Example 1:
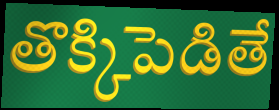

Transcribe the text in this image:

తొక్కిపెడితే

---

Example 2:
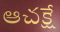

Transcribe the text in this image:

ఆచక్షే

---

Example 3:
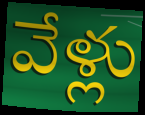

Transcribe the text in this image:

వేళ్లు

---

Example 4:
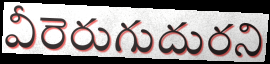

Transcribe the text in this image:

వీరెరుగుదురని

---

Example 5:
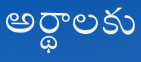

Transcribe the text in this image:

అర్థాలకు